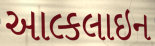
આલ્કલાઇન